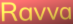
Ravva